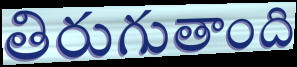
తిరుగుతాంది